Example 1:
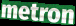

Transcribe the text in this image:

metron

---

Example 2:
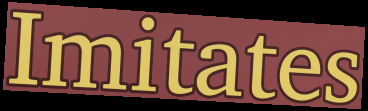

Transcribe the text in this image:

Imitates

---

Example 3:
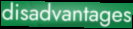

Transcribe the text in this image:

disadvantages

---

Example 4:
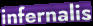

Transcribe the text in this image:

infernalis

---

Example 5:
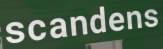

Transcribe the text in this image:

scandens